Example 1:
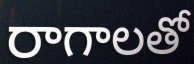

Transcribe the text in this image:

రాగాలతో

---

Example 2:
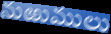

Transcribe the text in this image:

నుఱుములు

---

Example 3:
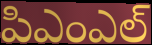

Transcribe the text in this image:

పిఎంఎల్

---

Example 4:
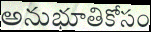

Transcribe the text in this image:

అనుభూతికోసం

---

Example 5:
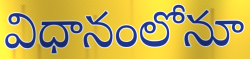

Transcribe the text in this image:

విధానంలోనూ